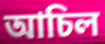
আচিল